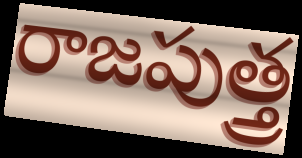
రాజపుత్త్ర